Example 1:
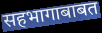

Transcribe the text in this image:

सहभागाबाबत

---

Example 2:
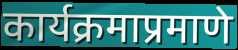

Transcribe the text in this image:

कार्यक्रमाप्रमाणे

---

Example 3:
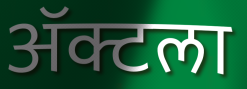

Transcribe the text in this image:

ॲक्टला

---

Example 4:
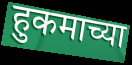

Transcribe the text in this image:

हुकमाच्या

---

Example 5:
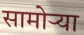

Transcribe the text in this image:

सामोऱ्या